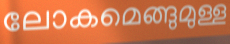
ലോകമെങ്ങുമുള്ള